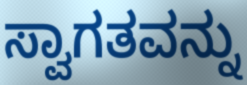
ಸ್ವಾಗತವನ್ನು